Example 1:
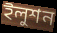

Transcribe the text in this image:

ইলুশন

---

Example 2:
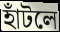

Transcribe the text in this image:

হাঁটলে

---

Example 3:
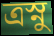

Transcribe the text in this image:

ত্রস্নু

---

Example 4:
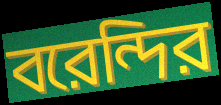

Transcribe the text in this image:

বরেন্দির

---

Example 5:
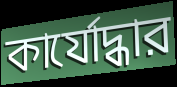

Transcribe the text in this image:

কার্যোদ্ধার